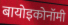
बायोइकोनॉमी